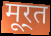
मूर्त